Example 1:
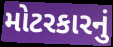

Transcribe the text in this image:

મોટરકારનું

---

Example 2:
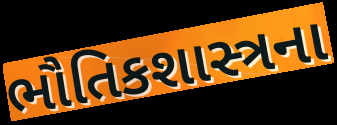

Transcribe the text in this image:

ભૌતિકશાસ્ત્રના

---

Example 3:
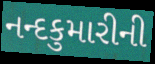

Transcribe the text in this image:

નન્દકુમારીની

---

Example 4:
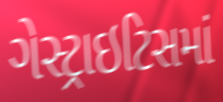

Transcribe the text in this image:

ગેસ્ટ્રાઇટિસમાં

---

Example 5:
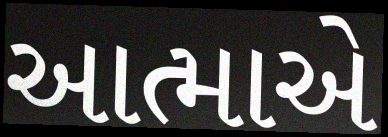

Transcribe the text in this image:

આત્માએ